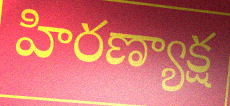
హిరణ్యాక్ష